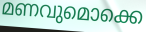
മണവുമൊക്കെ